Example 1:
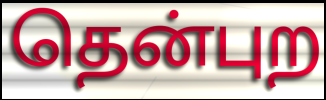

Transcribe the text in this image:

தென்புற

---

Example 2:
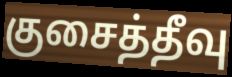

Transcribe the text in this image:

குசைத்தீவு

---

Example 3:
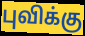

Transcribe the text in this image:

புவிக்கு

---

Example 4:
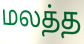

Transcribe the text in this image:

மலத்த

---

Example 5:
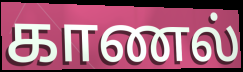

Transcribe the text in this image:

காணல்